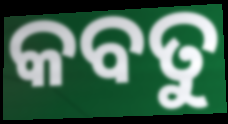
କବତୁ